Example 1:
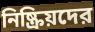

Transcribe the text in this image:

নিষ্ক্রিয়দের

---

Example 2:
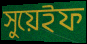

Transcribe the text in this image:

সুয়েইফ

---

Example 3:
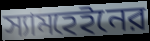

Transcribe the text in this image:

স্যামহেইনের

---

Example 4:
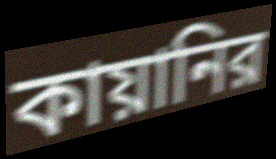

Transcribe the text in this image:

কায়ানির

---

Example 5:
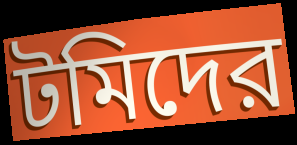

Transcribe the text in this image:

টমিদের